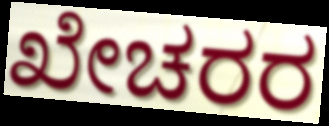
ಖೇಚರರ